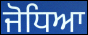
ਜੋਧਿਆ